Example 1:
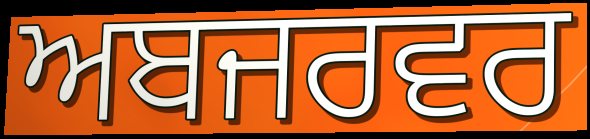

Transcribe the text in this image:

ਅਬਜਰਵਰ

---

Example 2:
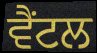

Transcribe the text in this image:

ਵੈਂਟਲ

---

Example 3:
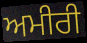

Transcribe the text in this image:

ਅਮੀਰੀ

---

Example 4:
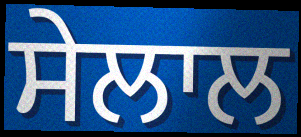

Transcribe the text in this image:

ਸੇਲਾਲ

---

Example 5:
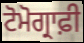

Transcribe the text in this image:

ਟੋਮੋਗ੍ਰਾਫ਼ੀ